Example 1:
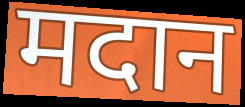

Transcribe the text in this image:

मदान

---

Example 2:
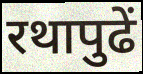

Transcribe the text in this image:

रथापुढें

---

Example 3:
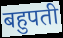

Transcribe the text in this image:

बहुपती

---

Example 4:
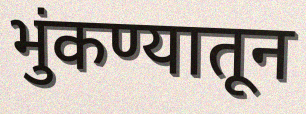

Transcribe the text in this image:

भुंकण्यातून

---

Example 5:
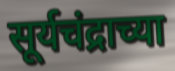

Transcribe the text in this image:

सूर्यचंद्राच्या